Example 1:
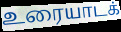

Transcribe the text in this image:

உரையாடக்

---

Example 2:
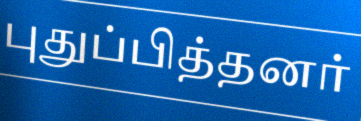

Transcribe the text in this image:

புதுப்பித்தனர்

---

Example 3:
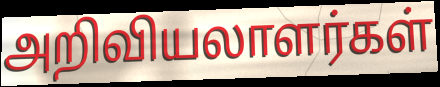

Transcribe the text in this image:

அறிவியலாளர்கள்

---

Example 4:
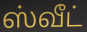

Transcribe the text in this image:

ஸ்வீட்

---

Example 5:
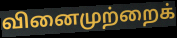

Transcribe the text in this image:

வினைமுற்றைக்